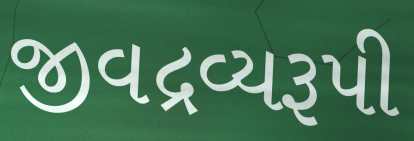
જીવદ્રવ્યરૂપી